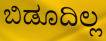
ಬಿಡೂದಿಲ್ಲ